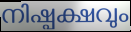
നിഷ്പക്ഷവും